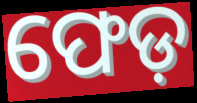
ଫେଡ଼